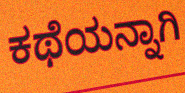
ಕಥೆಯನ್ನಾಗಿ